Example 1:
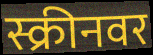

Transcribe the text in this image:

स्क्रीनवर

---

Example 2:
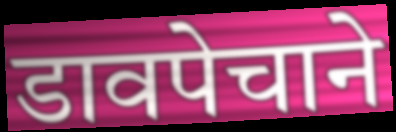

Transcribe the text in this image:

डावपेचाने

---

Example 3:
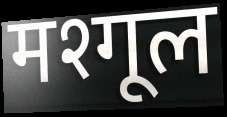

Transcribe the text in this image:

मश्गूल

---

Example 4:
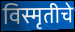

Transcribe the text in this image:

विस्मृतीचे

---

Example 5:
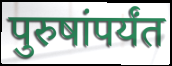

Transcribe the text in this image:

पुरुषांपर्यंत